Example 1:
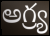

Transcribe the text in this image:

అగ్ర్య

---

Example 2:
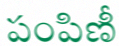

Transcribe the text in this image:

పంపిణీ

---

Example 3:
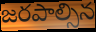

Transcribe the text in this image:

జరపాల్సిన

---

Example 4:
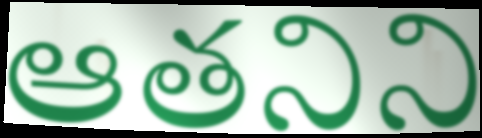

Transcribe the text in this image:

ఆతనిని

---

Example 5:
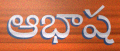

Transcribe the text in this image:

ఆభాష